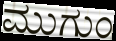
ಮುಗುಂ